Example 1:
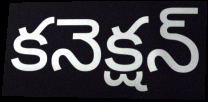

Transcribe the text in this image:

కనెక్షన్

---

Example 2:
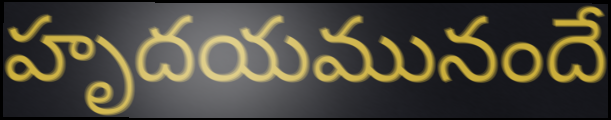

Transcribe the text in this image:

హృదయమునందే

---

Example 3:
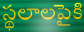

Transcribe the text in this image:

స్థలాలపైకి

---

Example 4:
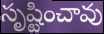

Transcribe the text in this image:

సృష్టించావు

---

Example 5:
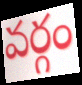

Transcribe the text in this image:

వర్గం